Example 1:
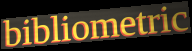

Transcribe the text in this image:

bibliometric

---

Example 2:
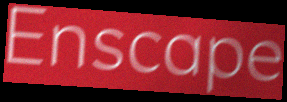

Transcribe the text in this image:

Enscape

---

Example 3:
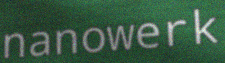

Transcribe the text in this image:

nanowerk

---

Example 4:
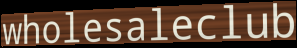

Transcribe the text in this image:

wholesaleclub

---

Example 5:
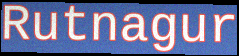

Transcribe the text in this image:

Rutnagur